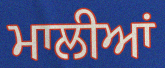
ਮਾਲੀਆਂ